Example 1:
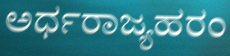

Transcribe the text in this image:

ಅರ್ಧರಾಜ್ಯಹರಂ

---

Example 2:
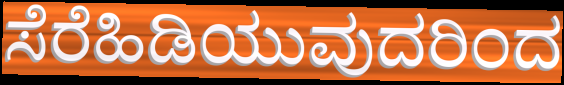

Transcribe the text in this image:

ಸೆರೆಹಿಡಿಯುವುದರಿಂದ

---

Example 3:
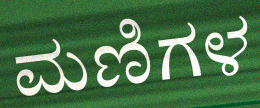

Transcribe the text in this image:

ಮಣಿಗಳ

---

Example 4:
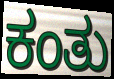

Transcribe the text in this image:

ಕಂತು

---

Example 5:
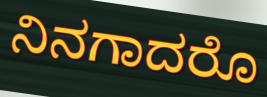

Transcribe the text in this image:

ನಿನಗಾದರೊ